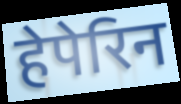
हेपेरिन